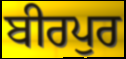
ਬੀਰਪੁਰ